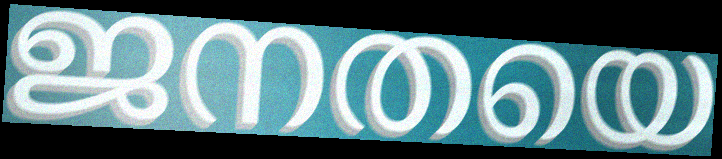
ജനതയെ